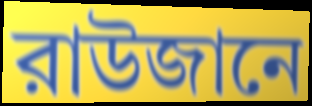
রাউজানে